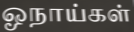
ஓநாய்கள்